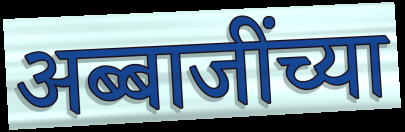
अब्बाजींच्या